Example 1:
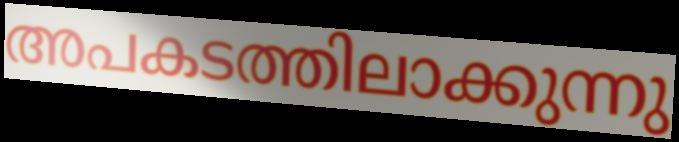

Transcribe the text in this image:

അപകടത്തിലാക്കുന്നു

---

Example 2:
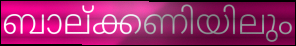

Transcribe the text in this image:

ബാല്ക്കണിയിലും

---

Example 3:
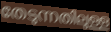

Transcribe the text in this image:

തേടുന്നതിലുള്ള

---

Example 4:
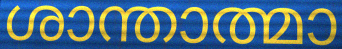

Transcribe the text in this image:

ശാന്താത്മാ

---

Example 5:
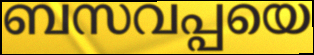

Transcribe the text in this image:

ബസവപ്പയെ